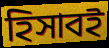
হিসাবই